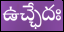
ఉచ్ఛేదః